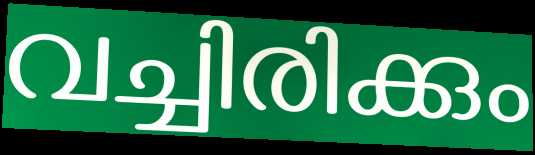
വച്ചിരിക്കും